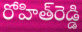
రోహిత్‌రెడ్డి